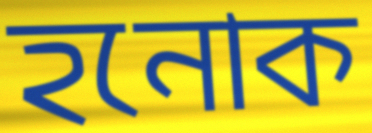
হনোক